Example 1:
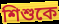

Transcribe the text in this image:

শিশুকে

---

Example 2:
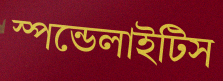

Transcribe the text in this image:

স্পন্ডেলাইটিস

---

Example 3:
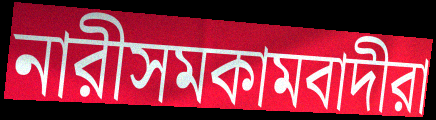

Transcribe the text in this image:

নারীসমকামবাদীরা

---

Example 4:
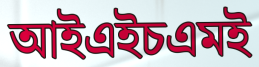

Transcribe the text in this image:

আইএইচএমই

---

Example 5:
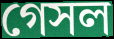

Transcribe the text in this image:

গেসল